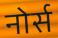
नोर्स